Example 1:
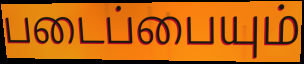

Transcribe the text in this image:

படைப்பையும்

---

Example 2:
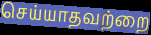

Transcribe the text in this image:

செய்யாதவற்றை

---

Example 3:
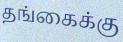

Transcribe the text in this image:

தங்கைக்கு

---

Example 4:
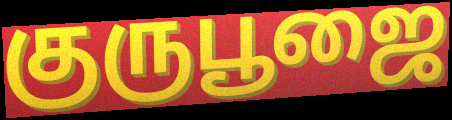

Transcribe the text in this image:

குருபூஜை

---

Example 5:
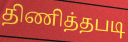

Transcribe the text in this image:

திணித்தபடி